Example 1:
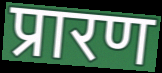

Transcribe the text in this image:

प्रारण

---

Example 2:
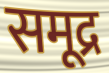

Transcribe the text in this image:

समूद्र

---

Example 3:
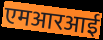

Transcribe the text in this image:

एमआरआई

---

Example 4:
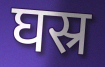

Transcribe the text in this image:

घस्र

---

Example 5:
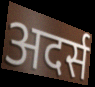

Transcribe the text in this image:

अदर्स